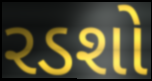
રડશો